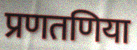
प्रणतणिया